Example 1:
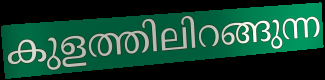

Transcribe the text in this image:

കുളത്തിലിറങ്ങുന്ന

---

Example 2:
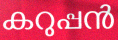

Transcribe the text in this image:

കറുപ്പൻ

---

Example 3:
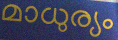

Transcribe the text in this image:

മാധുര്യം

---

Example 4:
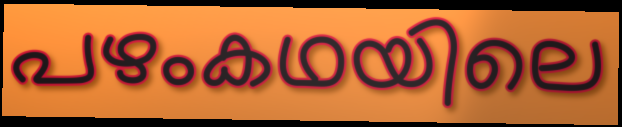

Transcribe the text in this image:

പഴംകഥയിലെ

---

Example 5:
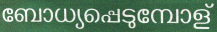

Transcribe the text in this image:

ബോധ്യപ്പെടുമ്പോള്